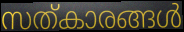
സത്കാരങ്ങൾ